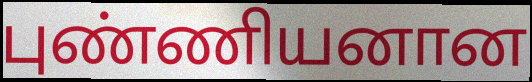
புண்ணியனான